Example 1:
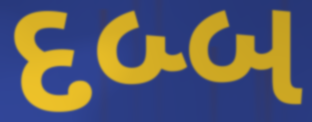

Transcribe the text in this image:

દબ્બ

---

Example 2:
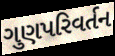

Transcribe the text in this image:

ગુણપરિવર્તન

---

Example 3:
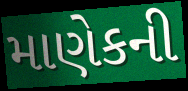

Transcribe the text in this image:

માણેકની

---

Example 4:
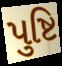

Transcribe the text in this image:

પુષ્ટિ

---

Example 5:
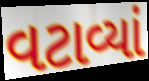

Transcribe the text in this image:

વટાવ્યાં